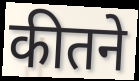
कीतने